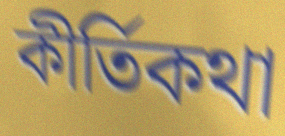
কীর্তিকথা